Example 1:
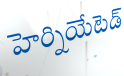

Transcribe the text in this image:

హెర్నియేటెడ్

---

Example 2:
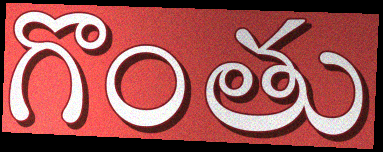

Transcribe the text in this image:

గొంతు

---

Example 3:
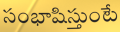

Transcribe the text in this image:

సంభాషిస్తుంటే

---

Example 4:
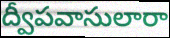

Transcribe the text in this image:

ద్వీపవాసులారా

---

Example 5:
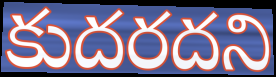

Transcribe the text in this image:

కుదరదని